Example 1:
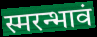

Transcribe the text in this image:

स्मरन्भावं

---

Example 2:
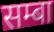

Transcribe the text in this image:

सम्बा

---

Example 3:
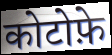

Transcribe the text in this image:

कोटोफ़े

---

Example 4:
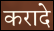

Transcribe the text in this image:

करादे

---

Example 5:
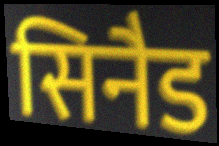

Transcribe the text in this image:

सिनैड